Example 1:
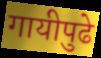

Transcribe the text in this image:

गायीपुढे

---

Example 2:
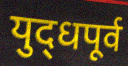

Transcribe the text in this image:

युद्धपूर्व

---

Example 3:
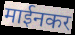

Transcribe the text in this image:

माईनकर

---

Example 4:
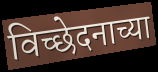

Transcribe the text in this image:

विच्छेदनाच्या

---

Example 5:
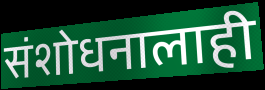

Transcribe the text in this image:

संशोधनालाही